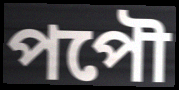
পপৌ